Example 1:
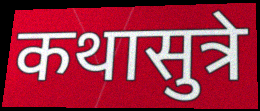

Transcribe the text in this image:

कथासुत्रे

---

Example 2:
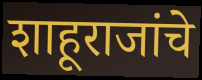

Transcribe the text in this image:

शाहूराजांचे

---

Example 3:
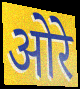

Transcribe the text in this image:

ओरे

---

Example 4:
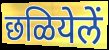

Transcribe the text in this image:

छळियेलें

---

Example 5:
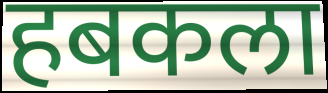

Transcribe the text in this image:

हबकला